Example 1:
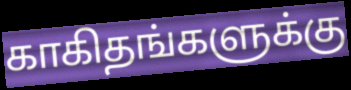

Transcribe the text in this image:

காகிதங்களுக்கு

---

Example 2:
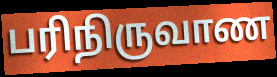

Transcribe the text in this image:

பரிநிருவாண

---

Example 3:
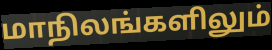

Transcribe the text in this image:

மாநிலங்களிலும்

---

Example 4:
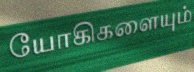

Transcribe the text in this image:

யோகிகளையும்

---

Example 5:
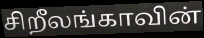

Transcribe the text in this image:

சிறீலங்காவின்